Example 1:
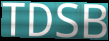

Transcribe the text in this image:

TDSB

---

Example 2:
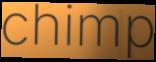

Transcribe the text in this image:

chimp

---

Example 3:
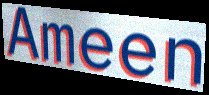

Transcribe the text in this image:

Ameen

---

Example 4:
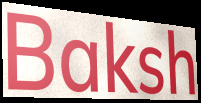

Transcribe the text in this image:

Baksh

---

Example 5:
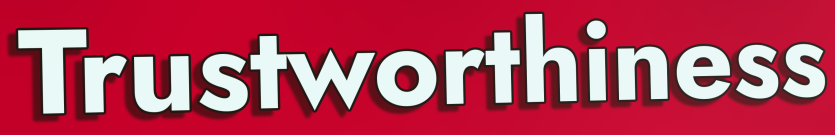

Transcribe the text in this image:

Trustworthiness